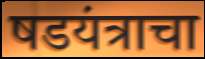
षडयंत्राचा